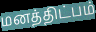
மனத்திட்பம்